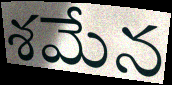
శమేన